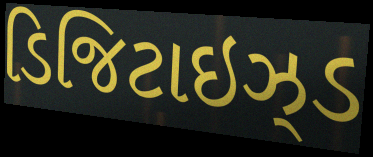
ડિજિટાઇઝ્ડ